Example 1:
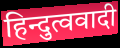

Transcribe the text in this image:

हिन्दुत्ववादी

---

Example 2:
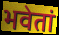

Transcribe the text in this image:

भवेतां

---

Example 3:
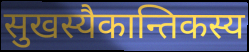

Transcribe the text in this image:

सुखस्यैकान्तिकस्य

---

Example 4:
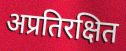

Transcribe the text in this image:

अप्रतिरक्षित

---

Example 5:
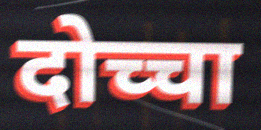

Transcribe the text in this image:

दोच्चा